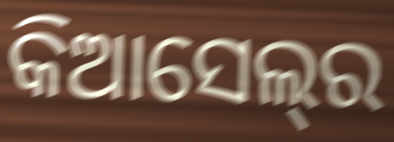
କିଆସେଲ୍‌ର